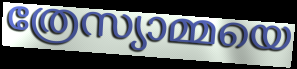
ത്രേസ്യാമ്മയെ